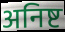
अनिष्ट